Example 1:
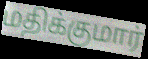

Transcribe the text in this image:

மதிக்குமார்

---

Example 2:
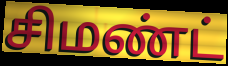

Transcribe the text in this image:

சிமண்ட்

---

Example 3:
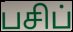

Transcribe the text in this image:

பசிப்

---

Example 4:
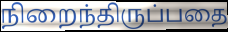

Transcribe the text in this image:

நிறைந்திருப்பதை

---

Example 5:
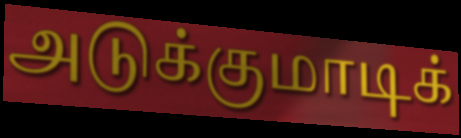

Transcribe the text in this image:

அடுக்குமாடிக்